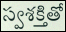
స్వశక్తితో